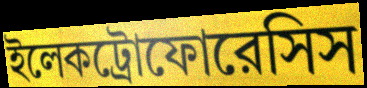
ইলেকট্রোফোরেসিস